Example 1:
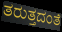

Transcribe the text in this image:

ತರುತ್ತದಂತೆ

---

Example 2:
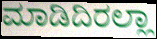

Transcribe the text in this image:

ಮಾಡಿದಿರಲ್ಲಾ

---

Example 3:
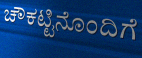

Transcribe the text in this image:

ಚೌಕಟ್ಟಿನೊಂದಿಗೆ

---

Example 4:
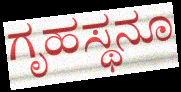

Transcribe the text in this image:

ಗೃಹಸ್ಥನೂ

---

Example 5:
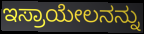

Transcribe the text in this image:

ಇಸ್ರಾಯೇಲನನ್ನು